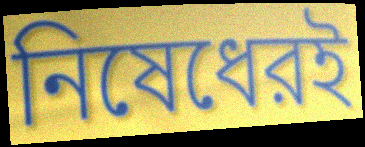
নিষেধেরই